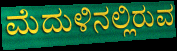
ಮೆದುಳಿನಲ್ಲಿರುವ